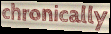
chronically